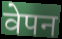
वेपन